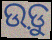
ଉଡ଼ୁ